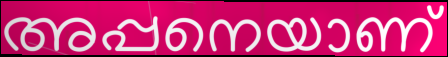
അപ്പനെയാണ്